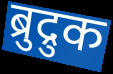
ब्रुद्रुक